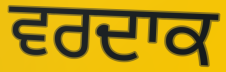
ਵਰਦਾਕ